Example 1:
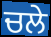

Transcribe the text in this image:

ਚਲੇ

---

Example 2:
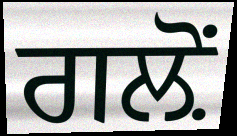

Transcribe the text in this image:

ਗਲ਼ੋਂ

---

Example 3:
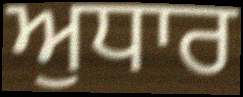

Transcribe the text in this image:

ਅੁਧਾਰ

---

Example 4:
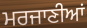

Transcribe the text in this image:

ਮਰਜਾਣੀਆਂ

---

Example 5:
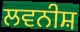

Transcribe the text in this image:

ਲਵਨੀਸ਼